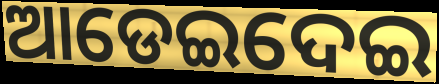
ଆଡେଇଦେଇ